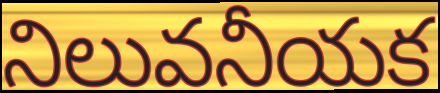
నిలువనీయక